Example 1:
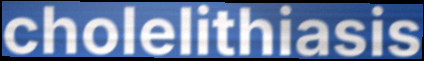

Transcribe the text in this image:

cholelithiasis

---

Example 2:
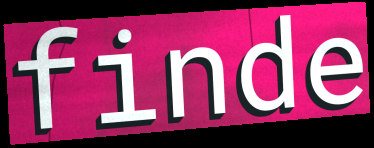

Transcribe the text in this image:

finde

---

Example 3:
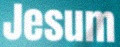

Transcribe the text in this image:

Jesum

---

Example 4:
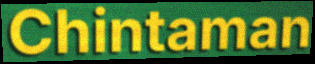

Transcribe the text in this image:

Chintaman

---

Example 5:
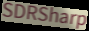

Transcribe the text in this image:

SDRSharp